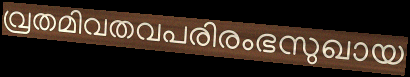
വ്രതമിവതവപരിരംഭസുഖായ